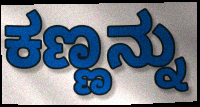
ಕಣ್ಣನ್ನು